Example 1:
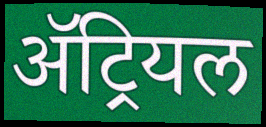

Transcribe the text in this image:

ॲट्रियल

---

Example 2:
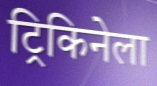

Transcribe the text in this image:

ट्रिकिनेला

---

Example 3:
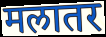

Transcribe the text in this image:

मलातर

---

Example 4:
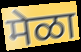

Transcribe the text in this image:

मेळा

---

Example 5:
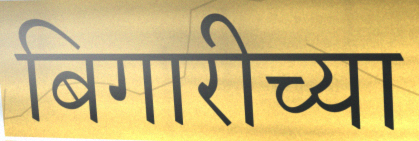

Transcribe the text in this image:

बिगारीच्या